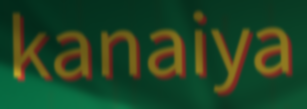
kanaiya